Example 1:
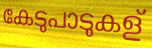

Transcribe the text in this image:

കേടുപാടുകള്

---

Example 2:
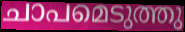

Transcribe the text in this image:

ചാപമെടുത്തു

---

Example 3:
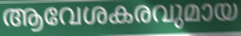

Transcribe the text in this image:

ആവേശകരവുമായ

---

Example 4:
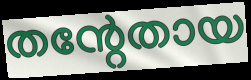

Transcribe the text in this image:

തന്റേതായ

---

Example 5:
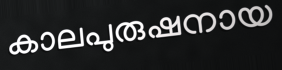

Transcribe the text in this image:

കാലപുരുഷനായ